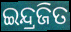
ଇନ୍ଦ୍ରଜିତ